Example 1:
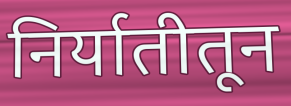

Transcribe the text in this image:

निर्यातीतून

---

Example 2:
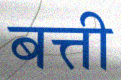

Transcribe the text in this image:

बत्ती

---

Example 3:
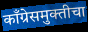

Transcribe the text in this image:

काँग्रेसमुक्तीचा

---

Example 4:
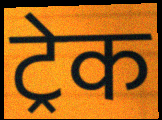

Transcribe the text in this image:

ट्रेक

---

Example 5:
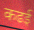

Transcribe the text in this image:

कढई